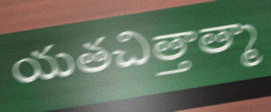
యతచిత్తాత్మా